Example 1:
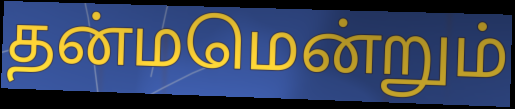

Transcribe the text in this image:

தன்மமென்றும்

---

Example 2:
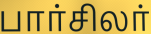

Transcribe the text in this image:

பார்சிலர்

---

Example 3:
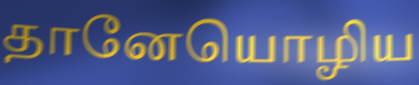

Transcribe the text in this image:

தானேயொழிய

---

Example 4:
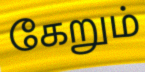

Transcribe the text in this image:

கேறும்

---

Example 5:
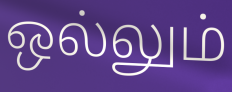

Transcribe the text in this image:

ஒல்லும்